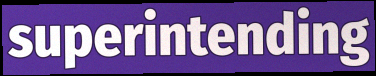
superintending